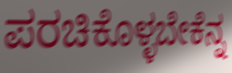
ಪರಚಿಕೊಳ್ಳಬೇಕೆನ್ನ